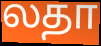
லதா